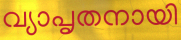
വ്യാപൃതനായി